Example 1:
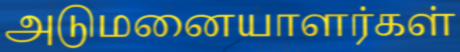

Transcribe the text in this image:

அடுமனையாளர்கள்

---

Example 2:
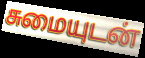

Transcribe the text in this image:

சுமையுடன்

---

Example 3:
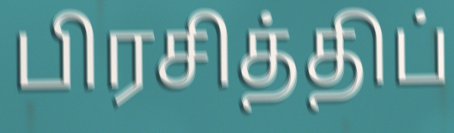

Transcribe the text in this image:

பிரசித்திப்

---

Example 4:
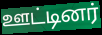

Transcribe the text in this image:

ஊட்டினர்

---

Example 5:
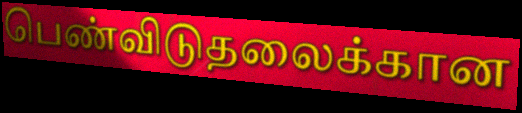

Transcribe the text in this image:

பெண்விடுதலைக்கான